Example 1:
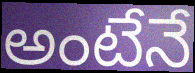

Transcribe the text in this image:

అంటేనే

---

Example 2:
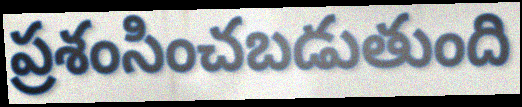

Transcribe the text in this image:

ప్రశంసించబడుతుంది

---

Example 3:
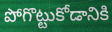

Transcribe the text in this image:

పోగొట్టుకోడానికి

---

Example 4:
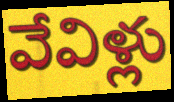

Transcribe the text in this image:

వేవిళ్లు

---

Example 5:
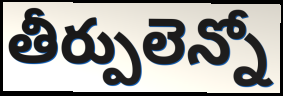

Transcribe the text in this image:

తీర్పులెన్నో